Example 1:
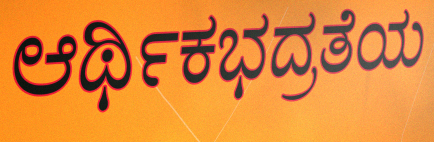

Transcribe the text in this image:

ಆರ್ಥಿಕಭದ್ರತೆಯ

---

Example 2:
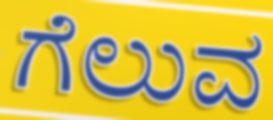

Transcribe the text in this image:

ಗೆಲುವ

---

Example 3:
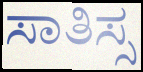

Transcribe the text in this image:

ಸಾತಿಸ್ಸ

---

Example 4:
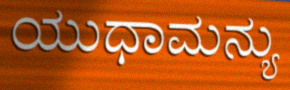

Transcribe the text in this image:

ಯುಧಾಮನ್ಯು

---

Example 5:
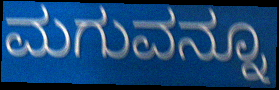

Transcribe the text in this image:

ಮಗುವನ್ನೂ